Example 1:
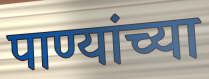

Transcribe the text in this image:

पाण्यांच्या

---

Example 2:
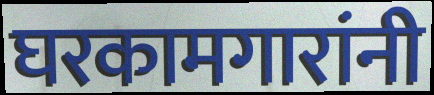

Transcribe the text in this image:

घरकामगारांनी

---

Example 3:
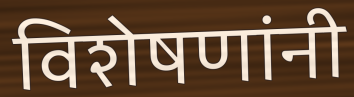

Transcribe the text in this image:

विशेषणांनी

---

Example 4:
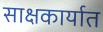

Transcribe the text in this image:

साक्षकार्यात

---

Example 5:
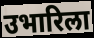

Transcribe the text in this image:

उभारिला